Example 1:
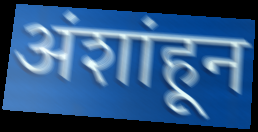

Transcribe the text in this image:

अंशांहून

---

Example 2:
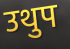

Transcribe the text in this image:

उथुप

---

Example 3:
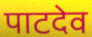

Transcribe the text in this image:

पाटदेव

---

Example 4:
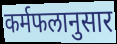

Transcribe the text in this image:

कर्मफलानुसार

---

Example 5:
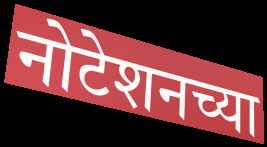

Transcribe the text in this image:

नोटेशनच्या